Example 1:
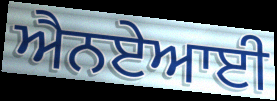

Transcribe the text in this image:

ਐਨਏਆਈ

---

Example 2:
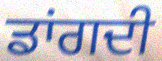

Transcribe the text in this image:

ਡਾਂਗਦੀ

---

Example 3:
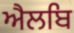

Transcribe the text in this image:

ਐਲਬਿ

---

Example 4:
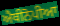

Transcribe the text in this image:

ਐਥੀਨੋਪੀਆ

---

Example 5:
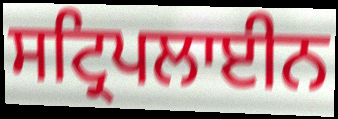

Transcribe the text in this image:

ਸਟ੍ਰਿਪਲਾਈਨ